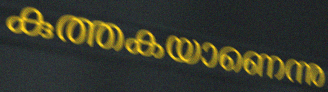
കുത്തകയാണെന്നു